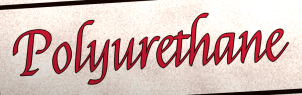
Polyurethane